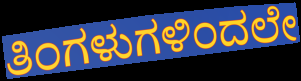
ತಿಂಗಳುಗಳಿಂದಲೇ